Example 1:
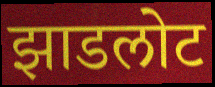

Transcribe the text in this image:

झाडलोट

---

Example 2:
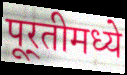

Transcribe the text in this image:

पूर्तीमध्ये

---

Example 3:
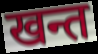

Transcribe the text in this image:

खन्त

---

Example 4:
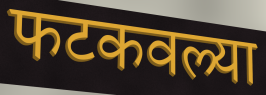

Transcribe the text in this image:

फटकवल्या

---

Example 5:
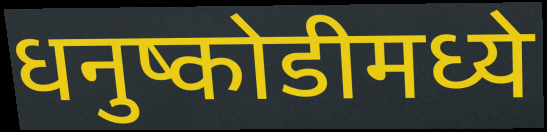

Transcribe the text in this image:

धनुष्कोडीमध्ये